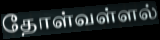
தோள்வள்ளல்